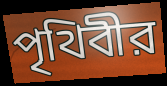
পৃথিবীর